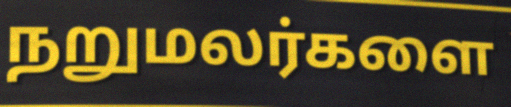
நறுமலர்களை